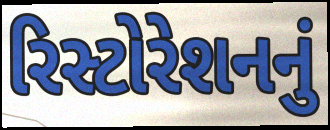
રિસ્ટોરેશનનું